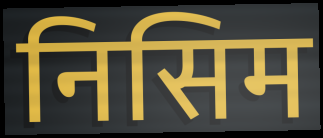
निसिम